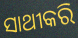
ସାଥୀକରି